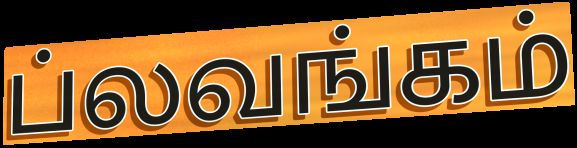
ப்லவங்கம்